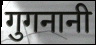
गुगनानी